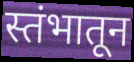
स्तंभातून